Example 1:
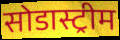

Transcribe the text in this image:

सोडास्ट्रीम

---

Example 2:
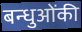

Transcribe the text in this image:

बन्धुओंकी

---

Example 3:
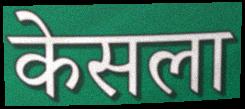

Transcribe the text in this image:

केसला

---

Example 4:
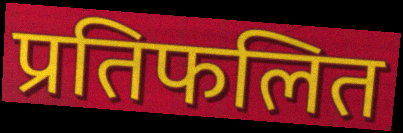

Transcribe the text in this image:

प्रतिफलित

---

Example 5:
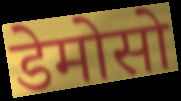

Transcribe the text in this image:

डेमोसो